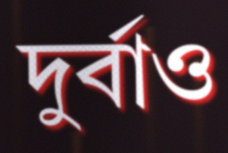
দুর্বাও